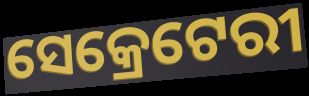
ସେକ୍ରେଟେରୀ